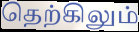
தெற்கிலும்